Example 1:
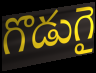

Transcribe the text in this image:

గొడుగై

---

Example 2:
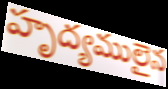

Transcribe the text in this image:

హృద్యములైన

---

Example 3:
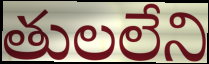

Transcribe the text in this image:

తులలేని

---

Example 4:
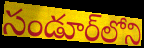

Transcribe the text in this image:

సండూర్‌లోని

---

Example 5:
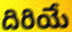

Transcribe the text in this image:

దిరియే